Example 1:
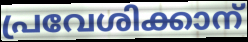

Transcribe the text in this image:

പ്രവേശിക്കാന്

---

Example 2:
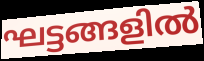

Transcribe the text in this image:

ഘട്ടങ്ങളിൽ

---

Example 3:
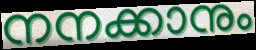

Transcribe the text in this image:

നനക്കാനും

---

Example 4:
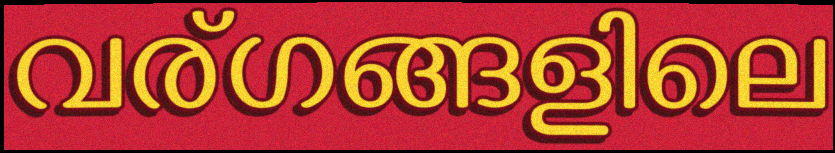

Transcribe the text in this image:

വര്ഗങ്ങളിലെ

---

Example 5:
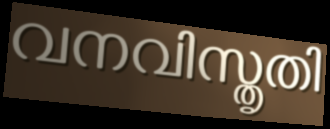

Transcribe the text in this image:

വനവിസ്തൃതി